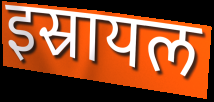
इस्रायल